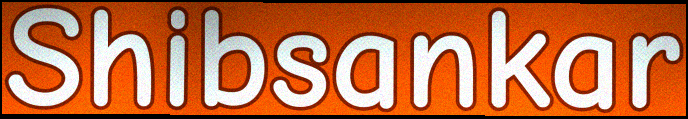
Shibsankar